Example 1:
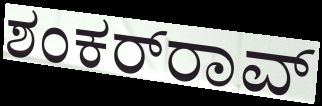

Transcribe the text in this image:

ಶಂಕರ್‌ರಾವ್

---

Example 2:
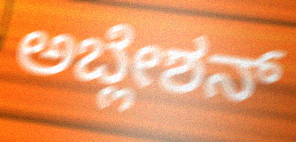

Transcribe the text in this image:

ಅಬ್ಲೇಶನ್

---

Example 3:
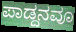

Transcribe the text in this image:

ಪಾಡ್ದನವೂ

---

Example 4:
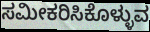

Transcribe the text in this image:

ಸಮೀಕರಿಸಿಕೊಳ್ಳುವ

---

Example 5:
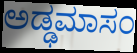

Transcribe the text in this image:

ಅಡ್ಢಮಾಸಂ